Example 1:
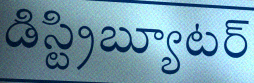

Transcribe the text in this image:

డిస్ట్రిబ్యూటర్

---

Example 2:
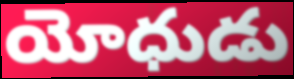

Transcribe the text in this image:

యోధుడు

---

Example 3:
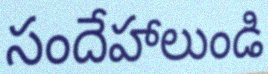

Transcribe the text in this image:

సందేహాలుండి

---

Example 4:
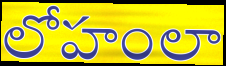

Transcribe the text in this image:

లోహంలా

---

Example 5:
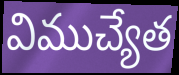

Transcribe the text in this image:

విముచ్యేత